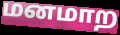
மனமாற